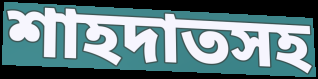
শাহদাতসহ